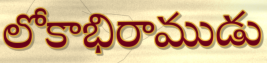
లోకాభిరాముడు